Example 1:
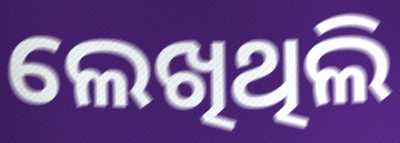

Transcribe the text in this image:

ଲେଖିଥିଲି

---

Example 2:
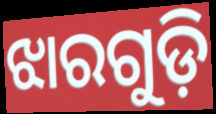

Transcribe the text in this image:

ଝାରଗୁଡ଼ି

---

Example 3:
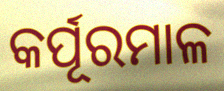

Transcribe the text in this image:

କର୍ପୂରମାଳ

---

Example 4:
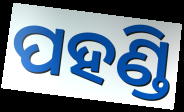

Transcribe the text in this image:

ପହଣ୍ଡି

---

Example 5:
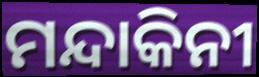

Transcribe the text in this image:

ମନ୍ଦାକିନୀ